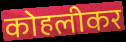
कोहलीकर